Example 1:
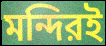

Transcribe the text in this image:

মন্দিরই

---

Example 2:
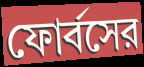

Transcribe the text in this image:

ফোর্বসের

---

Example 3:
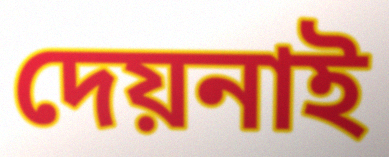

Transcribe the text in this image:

দেয়নাই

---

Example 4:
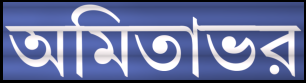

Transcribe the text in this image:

অমিতাভর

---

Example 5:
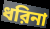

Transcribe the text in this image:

ধরিনা